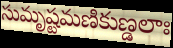
సుమృష్టమణికుణ్డలాః